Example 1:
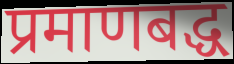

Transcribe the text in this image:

प्रमाणबद्ध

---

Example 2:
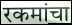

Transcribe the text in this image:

रकमांचा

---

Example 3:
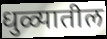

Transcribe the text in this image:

धुळ्यातील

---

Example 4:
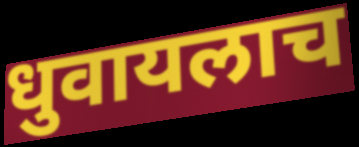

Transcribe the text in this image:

धुवायलाच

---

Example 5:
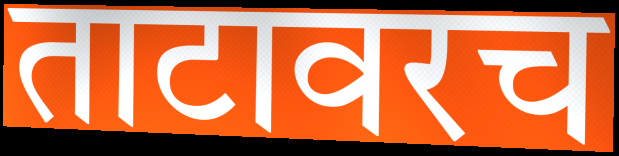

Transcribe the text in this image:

ताटावरच